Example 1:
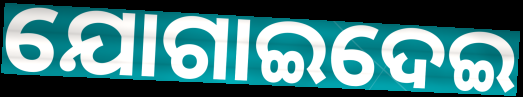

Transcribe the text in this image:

ଯୋଗାଇଦେଇ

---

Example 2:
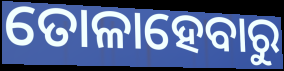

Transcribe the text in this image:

ତୋଳାହେବାରୁ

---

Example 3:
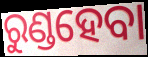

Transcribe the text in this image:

ରୁଣ୍ଡହେବା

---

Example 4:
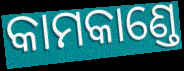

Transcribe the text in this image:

କାମକାଣ୍ଡେ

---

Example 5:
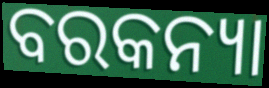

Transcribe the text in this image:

ବରକନ୍ୟା